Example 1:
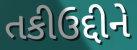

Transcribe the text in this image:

તકીઉદ્દીને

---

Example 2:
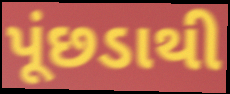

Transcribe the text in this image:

પૂંછડાથી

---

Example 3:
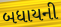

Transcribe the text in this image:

બધાયની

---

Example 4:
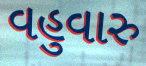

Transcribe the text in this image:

વહુવારુ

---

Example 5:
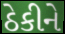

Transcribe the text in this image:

ઠેકીને